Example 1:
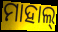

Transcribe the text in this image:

ମାହାଲ୍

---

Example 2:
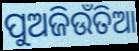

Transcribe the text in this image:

ପୁଅଜିଉଁତିଆ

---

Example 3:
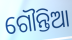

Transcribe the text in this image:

ଗୌନ୍ତିଆ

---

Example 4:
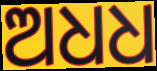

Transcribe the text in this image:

ଅଧଧ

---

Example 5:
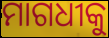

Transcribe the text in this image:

ମାଗଧୀକୁ